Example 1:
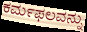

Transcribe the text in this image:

ಕರ್ಮಫಲವನ್ನು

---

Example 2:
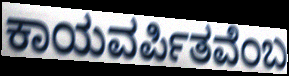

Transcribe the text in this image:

ಕಾಯವರ್ಪಿತವೆಂಬ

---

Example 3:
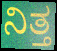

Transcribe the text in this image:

ನಿತ್ತ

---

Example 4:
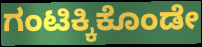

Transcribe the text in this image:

ಗಂಟಿಕ್ಕಿಕೊಂಡೇ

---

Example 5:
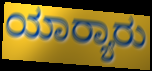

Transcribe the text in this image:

ಯಾರ್‍ಯಾರು